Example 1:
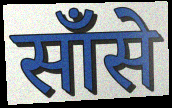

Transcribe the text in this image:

साँसे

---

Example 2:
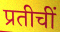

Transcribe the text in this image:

प्रतीचीं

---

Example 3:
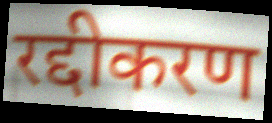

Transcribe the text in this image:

रद्दीकरण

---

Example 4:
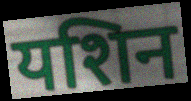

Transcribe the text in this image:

यशिन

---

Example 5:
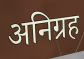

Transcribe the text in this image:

अनिग्रह